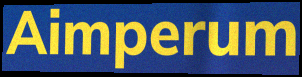
Aimperum